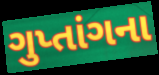
ગુપ્તાંગના